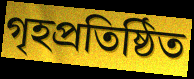
গৃহপ্রতিষ্ঠিত